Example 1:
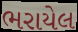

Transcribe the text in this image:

ભરાયેલ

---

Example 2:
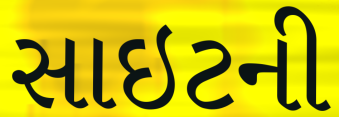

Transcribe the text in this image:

સાઇટની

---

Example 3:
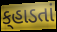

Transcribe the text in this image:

ક્‌હાડતાં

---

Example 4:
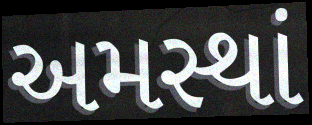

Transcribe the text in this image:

અમસ્થાં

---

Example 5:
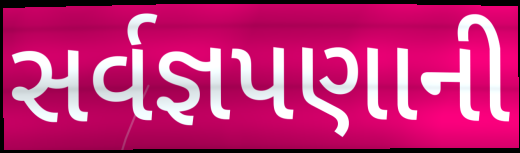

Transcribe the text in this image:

સર્વજ્ઞપણાની